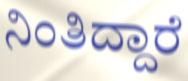
ನಿಂತಿದ್ದಾರೆ